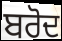
ਬਰੋਦ